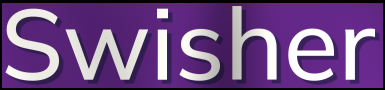
Swisher